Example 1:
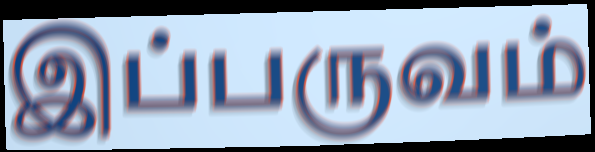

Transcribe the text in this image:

இப்பருவம்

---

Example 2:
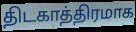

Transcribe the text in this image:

திடகாத்திரமாக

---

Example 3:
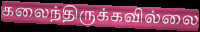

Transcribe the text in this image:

கலைந்திருக்கவில்லை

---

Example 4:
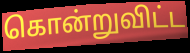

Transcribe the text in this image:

கொன்றுவிட்ட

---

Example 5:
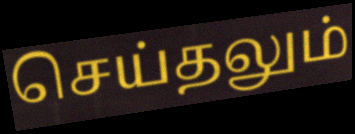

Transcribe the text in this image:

செய்தலும்